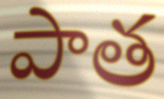
పాత